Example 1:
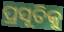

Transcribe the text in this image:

ପ୍ରସୂତିକୁ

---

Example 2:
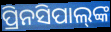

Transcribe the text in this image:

ପ୍ରିନସିପାଲ୍‍ଙ୍କ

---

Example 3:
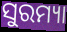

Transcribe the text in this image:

ସୁରମ୍ୟା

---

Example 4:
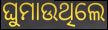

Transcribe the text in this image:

ଘୁମାଉଥିଲେ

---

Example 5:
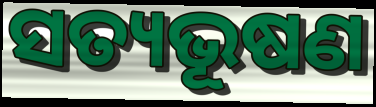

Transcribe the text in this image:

ସତ୍ୟଭୂଷଣ